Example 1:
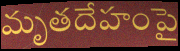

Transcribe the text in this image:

మృతదేహంపై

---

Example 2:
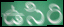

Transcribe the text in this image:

ఉసిరి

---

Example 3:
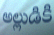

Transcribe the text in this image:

అల్లుడికి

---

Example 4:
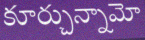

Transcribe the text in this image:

కూర్చున్నామో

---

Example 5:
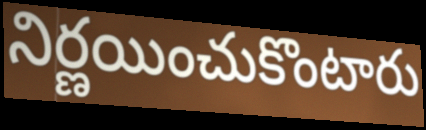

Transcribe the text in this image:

నిర్ణయించుకొంటారు